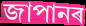
জাপানৰ